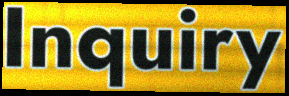
Inquiry